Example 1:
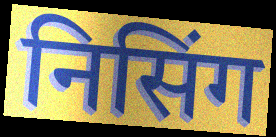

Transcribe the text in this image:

निसिंग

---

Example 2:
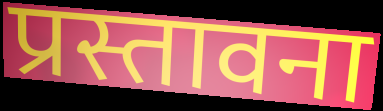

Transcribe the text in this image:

प्रस्‍तावना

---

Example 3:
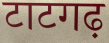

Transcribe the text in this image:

टाटगढ़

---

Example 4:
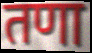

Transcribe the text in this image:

तणा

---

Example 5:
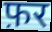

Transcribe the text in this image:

फ़र